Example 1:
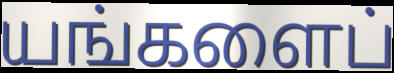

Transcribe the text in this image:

யங்களைப்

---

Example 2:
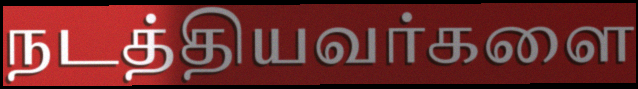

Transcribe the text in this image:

நடத்தியவர்களை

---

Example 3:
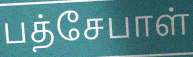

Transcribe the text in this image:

பத்சேபாள்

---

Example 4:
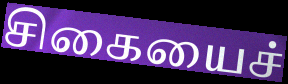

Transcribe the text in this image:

சிகையைச்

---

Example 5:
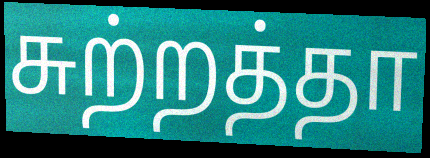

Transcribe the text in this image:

சுற்றத்தா